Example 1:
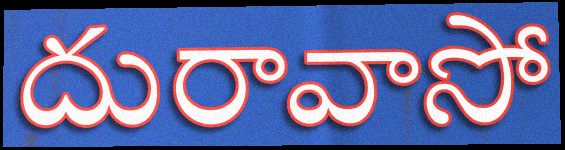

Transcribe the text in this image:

దురావాసో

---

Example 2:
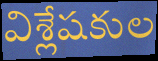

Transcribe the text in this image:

విశ్లేషకుల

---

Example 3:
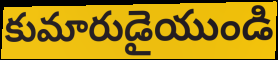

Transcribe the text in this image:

కుమారుడైయుండి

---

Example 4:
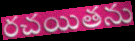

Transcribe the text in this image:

రచయితను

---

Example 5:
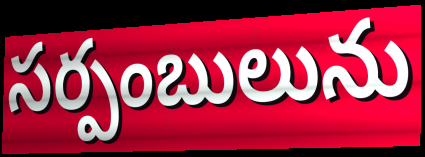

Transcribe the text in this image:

సర్పంబులును